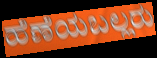
ಹೆಣೆಯಬಲ್ಲರು